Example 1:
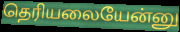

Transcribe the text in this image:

தெரியலையேன்னு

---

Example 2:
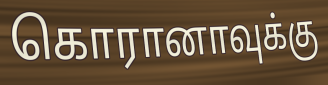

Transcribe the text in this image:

கொரானாவுக்கு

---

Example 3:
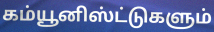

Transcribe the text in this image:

கம்யூனிஸ்ட்டுகளும்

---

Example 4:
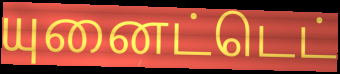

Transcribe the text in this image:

யுனைட்டெட்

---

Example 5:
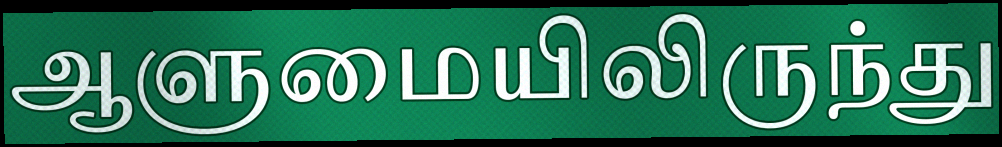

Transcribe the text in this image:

ஆளுமையிலிருந்து